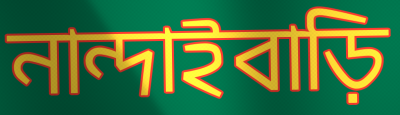
নান্দাইবাড়ি